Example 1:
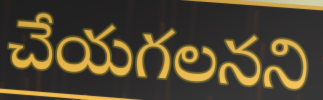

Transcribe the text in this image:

చేయగలనని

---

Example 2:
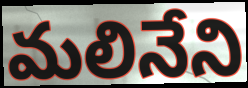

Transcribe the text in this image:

మలినేని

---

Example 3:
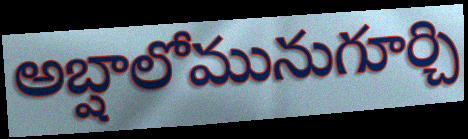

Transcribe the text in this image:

అబ్షాలోమునుగూర్చి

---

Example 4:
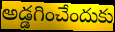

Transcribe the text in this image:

అడ్డగించేందుకు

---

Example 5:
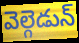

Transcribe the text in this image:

వెల్గెడున్